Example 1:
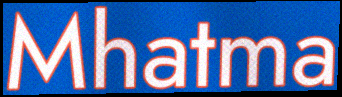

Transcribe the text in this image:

Mhatma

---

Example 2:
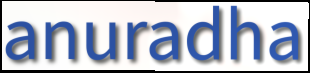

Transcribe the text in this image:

anuradha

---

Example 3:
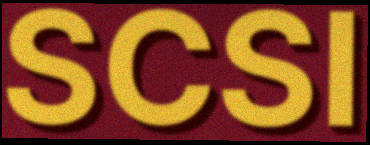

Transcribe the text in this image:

SCSI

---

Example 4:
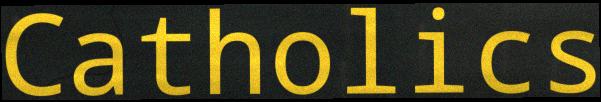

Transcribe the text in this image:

Catholics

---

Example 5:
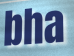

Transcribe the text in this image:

bha